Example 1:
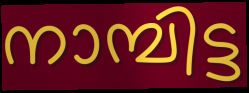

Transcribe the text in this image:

നാമ്പിട്ട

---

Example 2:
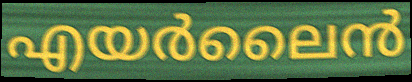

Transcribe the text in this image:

എയർലൈൻ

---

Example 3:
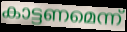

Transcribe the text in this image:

കാട്ടണമെന്ന്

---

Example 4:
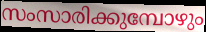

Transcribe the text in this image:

സംസാരിക്കുമ്പോഴും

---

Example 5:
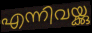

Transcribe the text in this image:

എന്നിവയ്ക്കു